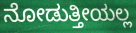
ನೋಡುತ್ತೀಯಲ್ಲ